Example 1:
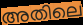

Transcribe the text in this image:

അതിലെ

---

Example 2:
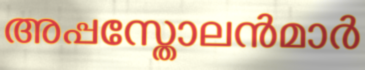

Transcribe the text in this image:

അപ്പസ്തോലൻമാർ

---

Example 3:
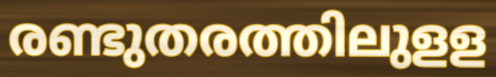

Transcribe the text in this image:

രണ്ടുതരത്തിലുളള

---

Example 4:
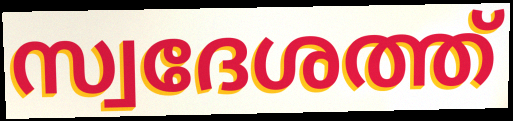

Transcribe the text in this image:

സ്വദേശത്ത്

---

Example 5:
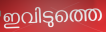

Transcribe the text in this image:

ഇവിടുത്തെ